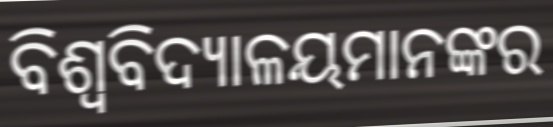
ବିଶ୍ଵବିଦ୍ୟାଳୟମାନଙ୍କର